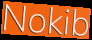
Nokib